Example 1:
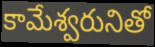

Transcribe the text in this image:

కామేశ్వరునితో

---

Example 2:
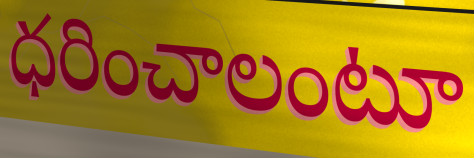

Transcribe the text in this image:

ధరించాలంటూ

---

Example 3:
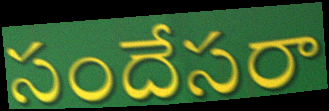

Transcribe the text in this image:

సందేసరా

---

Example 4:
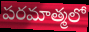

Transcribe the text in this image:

పరమాత్మలో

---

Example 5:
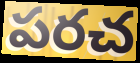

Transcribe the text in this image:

పరచ